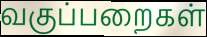
வகுப்பறைகள்